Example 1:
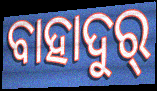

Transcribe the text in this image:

ବାହାଦୁର୍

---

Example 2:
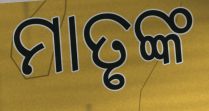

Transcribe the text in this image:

ମାତୃଙ୍କ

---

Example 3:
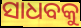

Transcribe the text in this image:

ସାଧବକୁ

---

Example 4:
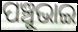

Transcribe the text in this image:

ପଞ୍ଚୁଭାଇ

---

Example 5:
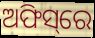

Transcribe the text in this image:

ଅଫିସ୍‌ରେ